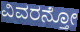
ವಿವರನ್ತೋ